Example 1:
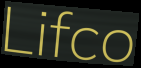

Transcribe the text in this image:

Lifco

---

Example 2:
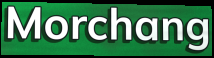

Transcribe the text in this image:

Morchang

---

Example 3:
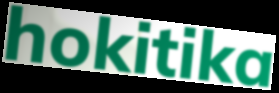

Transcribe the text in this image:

hokitika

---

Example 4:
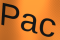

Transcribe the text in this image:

Pac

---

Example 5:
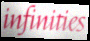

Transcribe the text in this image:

infinities